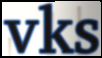
vks